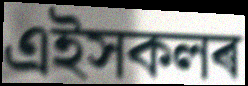
এইসকলৰ